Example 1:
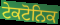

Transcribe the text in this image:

ਟੇਕਟੋਨਿਕ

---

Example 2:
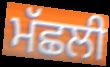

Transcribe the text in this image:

ਮੱਛਲੀ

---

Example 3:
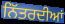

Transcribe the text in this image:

ਨਿੱਤਰਦੀਆਂ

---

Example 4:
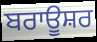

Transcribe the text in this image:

ਬਰਾਊਸ਼ਰ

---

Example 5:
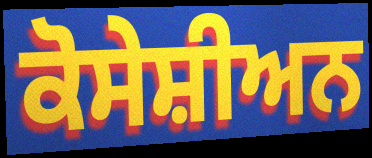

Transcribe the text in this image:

ਕੋਸੇਸ਼ੀਅਨ